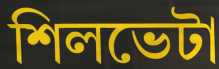
শিলভেটা